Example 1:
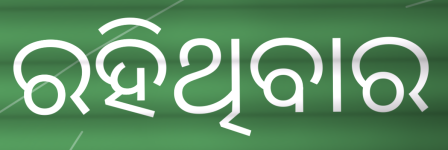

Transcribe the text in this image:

ରହିଥିବାର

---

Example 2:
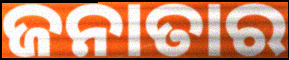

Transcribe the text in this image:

ଜନାତାର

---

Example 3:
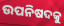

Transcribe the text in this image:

ଉପନିଷଦକୁ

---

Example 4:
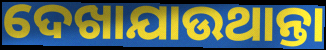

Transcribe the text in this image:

ଦେଖାଯାଉଥାନ୍ତା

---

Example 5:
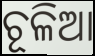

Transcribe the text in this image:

ଚୂଳିଆ